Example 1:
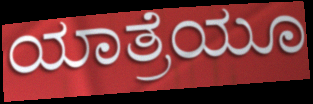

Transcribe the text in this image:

ಯಾತ್ರೆಯೂ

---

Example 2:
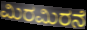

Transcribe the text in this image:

ಮಿರಮಿರನೆ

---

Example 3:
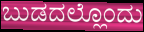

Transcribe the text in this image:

ಬುಡದಲ್ಲೊಂದು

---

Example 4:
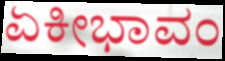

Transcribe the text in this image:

ಏಕೀಭಾವಂ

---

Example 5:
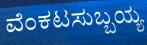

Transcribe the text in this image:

ವೆಂಕಟಸುಬ್ಬಯ್ಯ